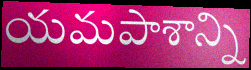
యమపాశాన్ని